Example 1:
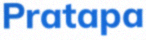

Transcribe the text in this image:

Pratapa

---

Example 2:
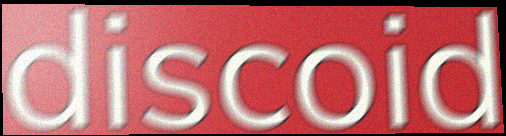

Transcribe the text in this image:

discoid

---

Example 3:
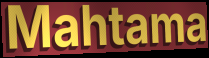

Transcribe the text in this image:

Mahtama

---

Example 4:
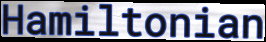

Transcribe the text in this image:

Hamiltonian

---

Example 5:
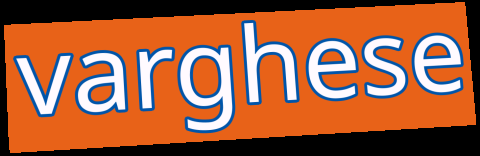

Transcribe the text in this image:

varghese